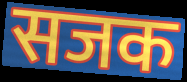
सजक